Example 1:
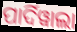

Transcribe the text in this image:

ପାର୍ଦିୱାଲା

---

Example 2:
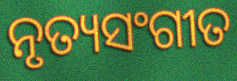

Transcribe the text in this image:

ନୃତ୍ୟସଂଗୀତ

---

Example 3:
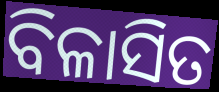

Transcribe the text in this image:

ବିଳାସିତ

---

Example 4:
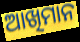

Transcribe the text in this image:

ଆଖିମାନ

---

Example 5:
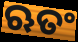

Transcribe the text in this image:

ଋତଂ